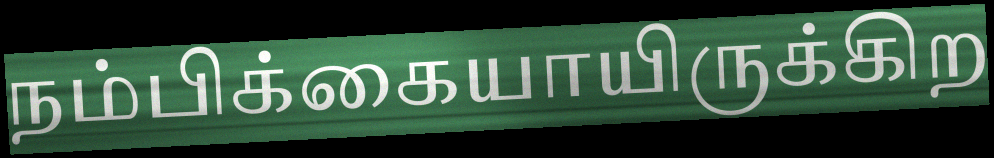
நம்பிக்கையாயிருக்கிற